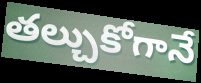
తల్చుకోగానే